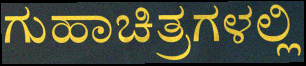
ಗುಹಾಚಿತ್ರಗಳಲ್ಲಿ